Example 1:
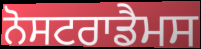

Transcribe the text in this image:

ਨੋਸਟਰਾਡੈਮਸ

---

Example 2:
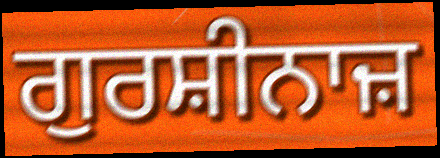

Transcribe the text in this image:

ਗੁਰਸ਼ੀਨਾਜ਼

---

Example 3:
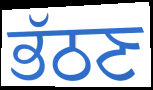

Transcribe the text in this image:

ਭੱਠਣ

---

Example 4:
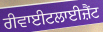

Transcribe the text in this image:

ਰੀਵਾਈਟਲਾਈਜ਼ੈਂਟ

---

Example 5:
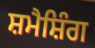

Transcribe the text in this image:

ਸ਼ਮੈਸ਼ਿੰਗ